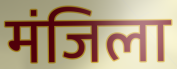
मंजिला